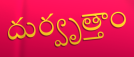
దుర్వృత్తాం